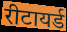
रीटायर्ड